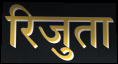
रिजुता